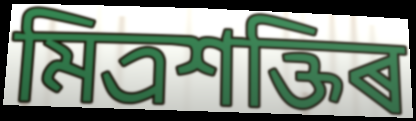
মিত্ৰশক্তিৰ